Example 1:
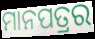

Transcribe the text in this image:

ମାନପତ୍ରର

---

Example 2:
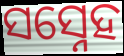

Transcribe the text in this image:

ସସ୍ନେହ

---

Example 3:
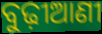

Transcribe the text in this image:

ବୁଢ଼ୀଆଣୀ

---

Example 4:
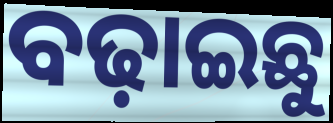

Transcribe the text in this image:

ବଢ଼ାଇଛୁ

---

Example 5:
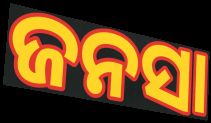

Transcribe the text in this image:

ଜନସା